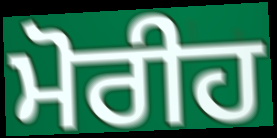
ਮੋਰੀਹ